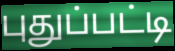
புதுப்பட்டி